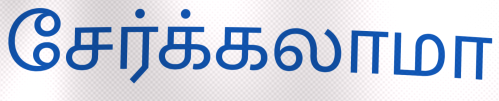
சேர்க்கலாமா